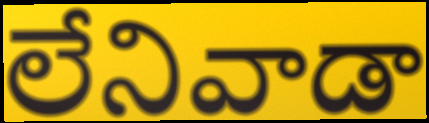
లేనివాడా